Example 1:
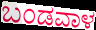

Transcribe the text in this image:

ಬಂಡವಾಳ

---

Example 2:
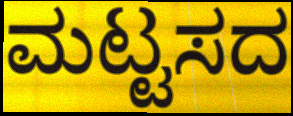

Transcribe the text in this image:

ಮಟ್ಟಸದ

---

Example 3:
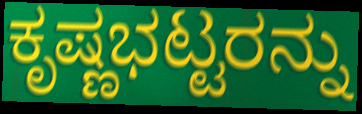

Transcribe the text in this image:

ಕೃಷ್ಣಭಟ್ಟರನ್ನು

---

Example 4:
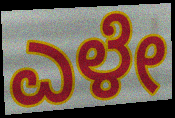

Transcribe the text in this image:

ಎಳೇ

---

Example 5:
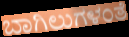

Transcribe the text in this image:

ಬಾಗಿಲುಗಳಂತೆ